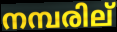
നമ്പരില്